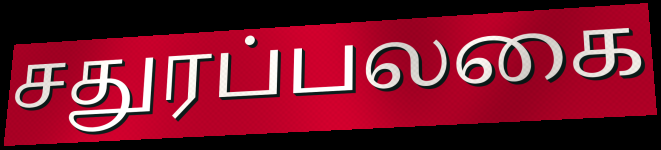
சதுரப்பலகை